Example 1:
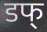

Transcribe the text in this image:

डफ्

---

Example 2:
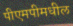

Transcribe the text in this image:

पीएमपीमधील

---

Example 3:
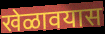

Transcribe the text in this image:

खेळावयास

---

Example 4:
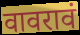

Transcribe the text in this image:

वावरावं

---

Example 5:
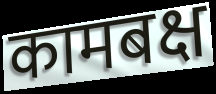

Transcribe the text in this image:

कामबक्ष